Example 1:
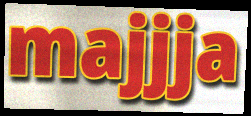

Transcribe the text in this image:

majjja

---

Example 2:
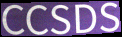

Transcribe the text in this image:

CCSDS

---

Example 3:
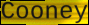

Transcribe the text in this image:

Cooney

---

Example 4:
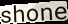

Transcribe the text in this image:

shone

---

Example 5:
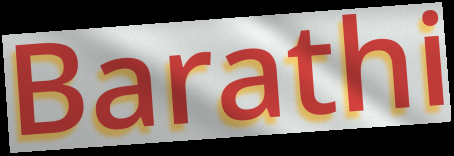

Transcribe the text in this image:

Barathi